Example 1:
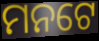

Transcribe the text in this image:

ମନଟେ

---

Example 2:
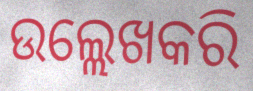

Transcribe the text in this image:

ଉଲ୍ଲେଖକରି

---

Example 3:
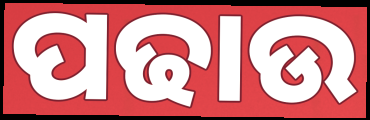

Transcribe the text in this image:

ପଢାଉ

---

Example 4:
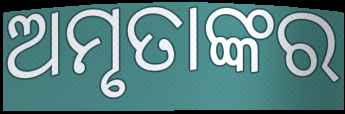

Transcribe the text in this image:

ଅମୃତାଙ୍କର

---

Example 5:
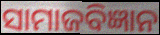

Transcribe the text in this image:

ସାମାଜବିଜ୍ଞାନ